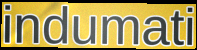
indumati